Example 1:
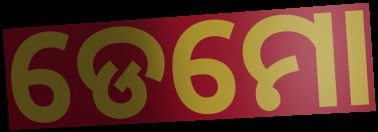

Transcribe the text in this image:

ଡେମୋ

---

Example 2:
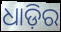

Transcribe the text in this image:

ଧାଡ଼ିର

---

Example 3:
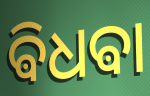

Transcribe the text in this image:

ଵିଧଵା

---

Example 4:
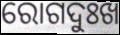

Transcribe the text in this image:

ରୋଗଦୁଃଖ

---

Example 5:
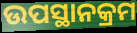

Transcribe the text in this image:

ଉପସ୍ଥାନକ୍ରମ